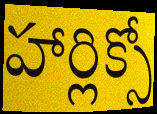
హార్లిక్సో